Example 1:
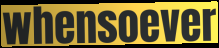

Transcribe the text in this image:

whensoever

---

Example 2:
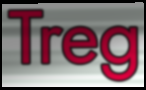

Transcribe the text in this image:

Treg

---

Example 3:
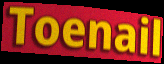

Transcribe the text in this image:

Toenail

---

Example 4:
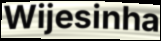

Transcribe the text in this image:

Wijesinha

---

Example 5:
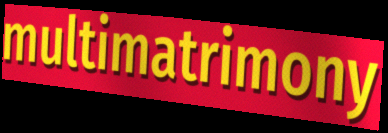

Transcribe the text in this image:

multimatrimony